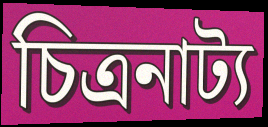
চিত্ৰনাট্য